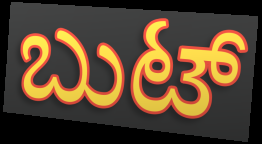
ಬುಟ್